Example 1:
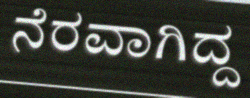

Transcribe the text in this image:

ನೆರವಾಗಿದ್ದ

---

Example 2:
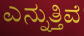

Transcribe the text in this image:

ಎನ್ನುತ್ತಿವೆ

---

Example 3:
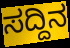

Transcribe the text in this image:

ಸದ್ದಿನ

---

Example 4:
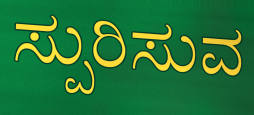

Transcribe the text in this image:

ಸ್ಪುರಿಸುವ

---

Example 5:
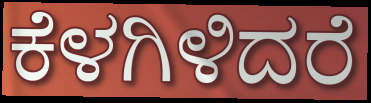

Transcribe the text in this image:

ಕೆಳಗಿಳಿದರೆ